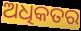
ଅଧିକତର